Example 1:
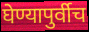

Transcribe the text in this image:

घेण्यापुर्वीच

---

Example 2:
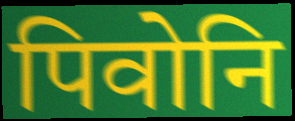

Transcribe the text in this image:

पिवोनि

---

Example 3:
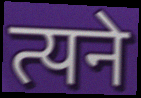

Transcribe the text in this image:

त्यने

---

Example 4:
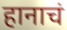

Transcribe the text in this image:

हानाचं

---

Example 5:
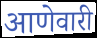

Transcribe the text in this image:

आणेवारी